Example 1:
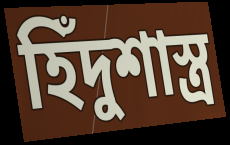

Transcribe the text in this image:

হিঁদুশাস্ত্র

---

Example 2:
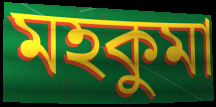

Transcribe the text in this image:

মহকুমা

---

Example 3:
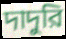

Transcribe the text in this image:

দাদুরি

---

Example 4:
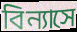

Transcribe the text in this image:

বিন্যাসে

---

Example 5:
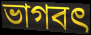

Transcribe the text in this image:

ভাগবৎ